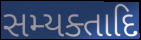
સમ્યક્તાદિ